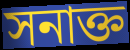
সনাক্ত